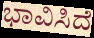
ಭಾವಿಸಿದೆ